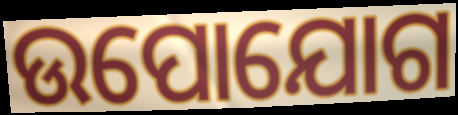
ଉପୋଯୋଗ